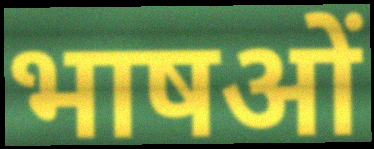
भाषओं